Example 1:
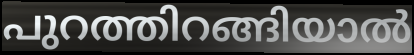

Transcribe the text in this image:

പുറത്തിറങ്ങിയാൽ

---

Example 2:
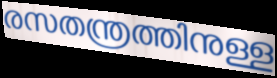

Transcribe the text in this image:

രസതന്ത്രത്തിനുള്ള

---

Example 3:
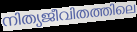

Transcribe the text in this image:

നിത്യജീവിതത്തിലെ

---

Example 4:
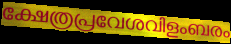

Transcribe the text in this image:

ക്ഷേത്രപ്രവേശവിളംബരം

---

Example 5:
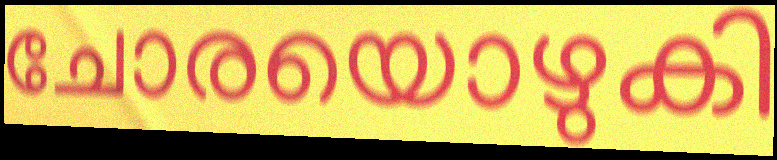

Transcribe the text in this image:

ചോരയൊഴുകി